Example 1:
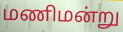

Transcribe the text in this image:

மணிமன்று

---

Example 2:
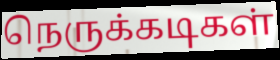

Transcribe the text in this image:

நெருக்கடிகள்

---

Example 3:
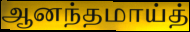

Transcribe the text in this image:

ஆனந்தமாய்த்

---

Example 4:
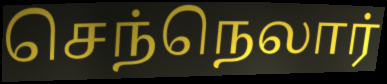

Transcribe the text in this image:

செந்நெலார்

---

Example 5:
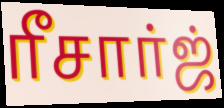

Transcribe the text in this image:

ரீசார்ஜ்